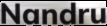
Nandru